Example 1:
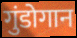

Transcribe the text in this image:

गुंडोगान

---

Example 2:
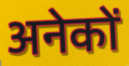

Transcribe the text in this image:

अनेकों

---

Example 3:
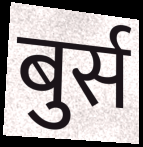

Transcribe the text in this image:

बुर्स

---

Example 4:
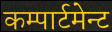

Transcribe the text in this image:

कम्पार्टमेन्ट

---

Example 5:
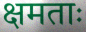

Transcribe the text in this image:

क्षमताः